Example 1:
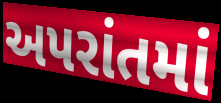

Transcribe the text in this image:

અપરાંતમાં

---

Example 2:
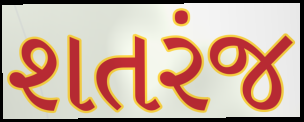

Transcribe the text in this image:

શતરંજ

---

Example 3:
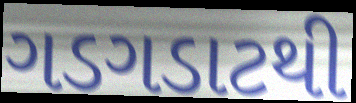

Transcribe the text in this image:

ગડગડાટથી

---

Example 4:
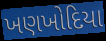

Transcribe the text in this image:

ખણખોદિયા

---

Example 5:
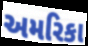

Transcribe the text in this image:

અમરિકા